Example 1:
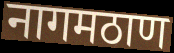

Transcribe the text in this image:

नागमठाण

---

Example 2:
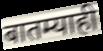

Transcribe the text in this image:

बातम्याही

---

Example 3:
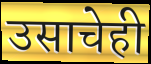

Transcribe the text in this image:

उसाचेही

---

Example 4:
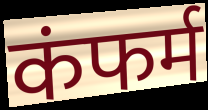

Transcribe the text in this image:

कंफर्म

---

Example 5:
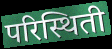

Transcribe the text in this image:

परिस्थिती